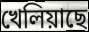
খেলিয়াছে